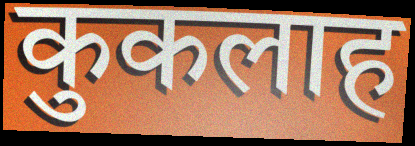
कुकलाह